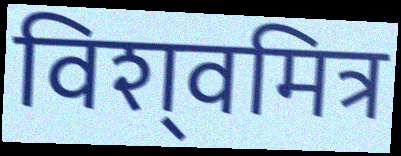
विश्वमित्र